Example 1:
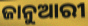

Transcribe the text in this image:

ଜାନୁଆରୀ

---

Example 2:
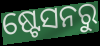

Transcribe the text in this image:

ଷ୍ଟେସନରୁ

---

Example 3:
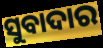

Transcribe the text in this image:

ସୁବାଦାର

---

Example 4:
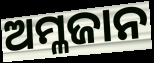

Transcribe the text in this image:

ଅମ୍ଳଜାନ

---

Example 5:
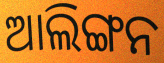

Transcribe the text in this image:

ଆଲିଙ୍ଗନ